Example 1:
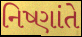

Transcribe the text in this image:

નિષ્ણાંતે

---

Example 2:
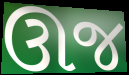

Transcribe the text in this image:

ઊજ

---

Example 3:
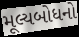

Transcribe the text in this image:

મૂલ્યબોધનો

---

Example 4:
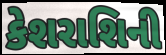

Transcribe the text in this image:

કેશરાશિની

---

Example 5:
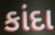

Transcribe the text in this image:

કાંદા